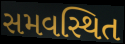
સમવસ્થિત